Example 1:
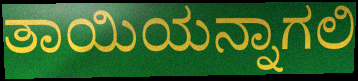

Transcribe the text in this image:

ತಾಯಿಯನ್ನಾಗಲಿ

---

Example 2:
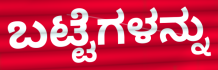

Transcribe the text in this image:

ಬಟ್ಟೆಗಳನ್ನು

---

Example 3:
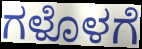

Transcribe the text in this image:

ಗಳೊಳಗೆ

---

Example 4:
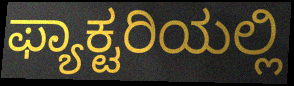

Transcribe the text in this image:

ಫ್ಯಾಕ್ಟರಿಯಲ್ಲಿ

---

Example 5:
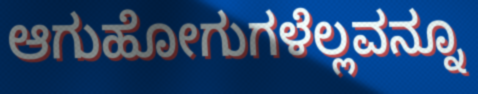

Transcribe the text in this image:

ಆಗುಹೋಗುಗಳೆಲ್ಲವನ್ನೂ